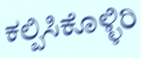
ಕಲ್ಪಿಸಿಕೊಳ್ಳಿರಿ